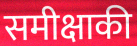
समीक्षाकी